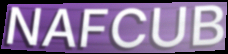
NAFCUB